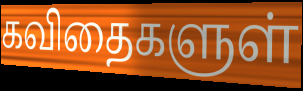
கவிதைகளுள்